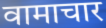
वामाचार